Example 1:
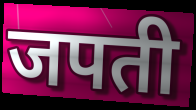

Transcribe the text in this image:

जपती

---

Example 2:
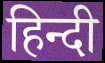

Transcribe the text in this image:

हिन्दी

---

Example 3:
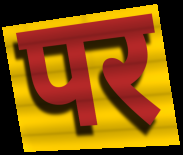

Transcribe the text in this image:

पर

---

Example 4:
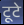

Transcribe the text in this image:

टूटे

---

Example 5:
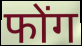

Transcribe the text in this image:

फोंग